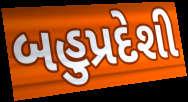
બહુપ્રદેશી